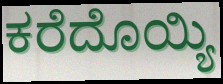
ಕರೆದೊಯ್ಯಿ